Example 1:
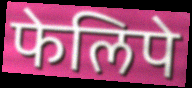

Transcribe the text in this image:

फेलिपे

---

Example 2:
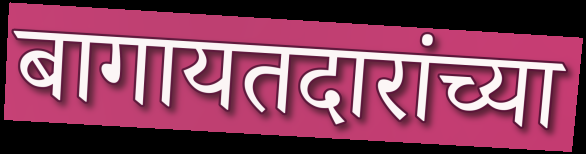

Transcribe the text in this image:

बागायतदारांच्या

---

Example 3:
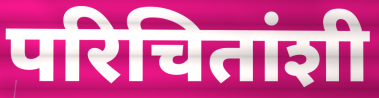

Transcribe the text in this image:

परिचितांशी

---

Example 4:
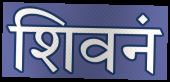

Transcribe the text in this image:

शिवनं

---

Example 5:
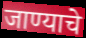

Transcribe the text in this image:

जाण्याचे